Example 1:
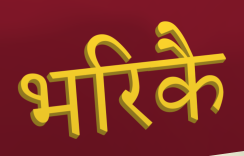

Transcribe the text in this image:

भरिकै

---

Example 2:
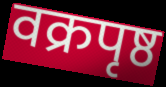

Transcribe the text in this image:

वक्रपृष्ठ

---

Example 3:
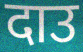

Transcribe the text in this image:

दाउ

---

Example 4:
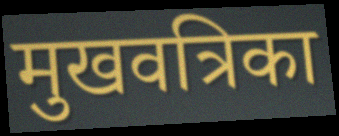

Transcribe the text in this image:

मुखवत्रिका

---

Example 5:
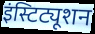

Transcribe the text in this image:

इंस्टिट्यूशन